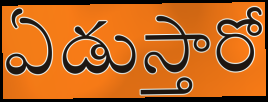
ఏడుస్తారో